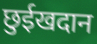
छुईखदान